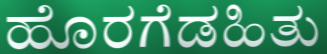
ಹೊರಗೆಡಹಿತು